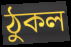
ঠুকল